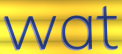
wat